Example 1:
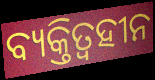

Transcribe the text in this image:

ବ୍ୟକ୍ତିତ୍ୱହୀନ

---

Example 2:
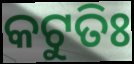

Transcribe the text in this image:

କଟୁତିଃ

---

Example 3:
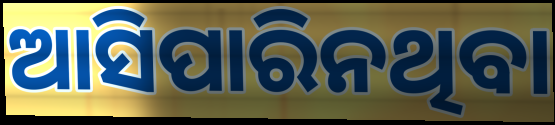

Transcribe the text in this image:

ଆସିପାରିନଥିବା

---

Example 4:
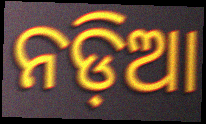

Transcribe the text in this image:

ନଡ଼ିଆ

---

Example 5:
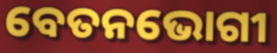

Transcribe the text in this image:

ବେତନଭୋଗୀ